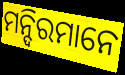
ମନ୍ଦିରମାନେ